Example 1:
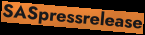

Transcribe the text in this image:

SASpressrelease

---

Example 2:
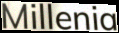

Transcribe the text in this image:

Millenia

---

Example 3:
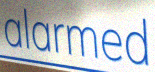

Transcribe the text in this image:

alarmed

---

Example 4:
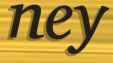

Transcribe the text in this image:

ney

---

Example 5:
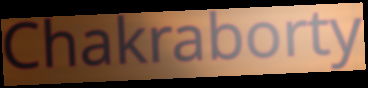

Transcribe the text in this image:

Chakraborty